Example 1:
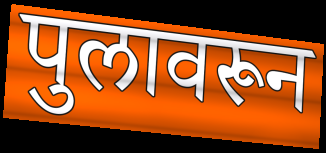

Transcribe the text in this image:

पुलावरून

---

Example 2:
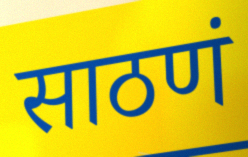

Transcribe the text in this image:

साठणं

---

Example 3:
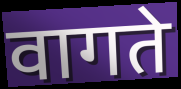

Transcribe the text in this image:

वागते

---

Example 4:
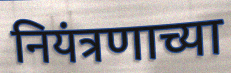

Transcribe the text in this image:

नियंत्रणाच्या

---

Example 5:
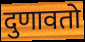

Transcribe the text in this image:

दुणावतो